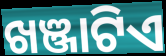
ଖଞ୍ଜାଟିଏ